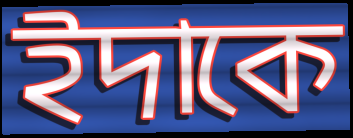
ইদাকে